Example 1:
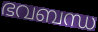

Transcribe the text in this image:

ഭവബന്ധ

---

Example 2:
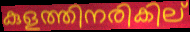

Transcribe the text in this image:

കുളത്തിനരികില്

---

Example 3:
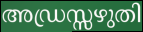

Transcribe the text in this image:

അഡ്രസ്സഴുതി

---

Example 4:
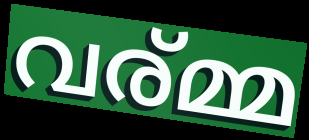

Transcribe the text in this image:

വര്മ്മ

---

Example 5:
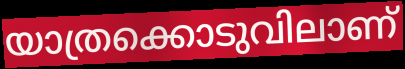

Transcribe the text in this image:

യാത്രക്കൊടുവിലാണ്